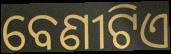
ବେଣୀଟିଏ